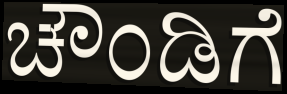
ಚೌಂಡಿಗೆ